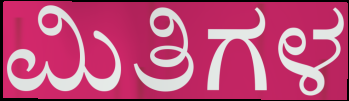
ಮಿತಿಗಳ